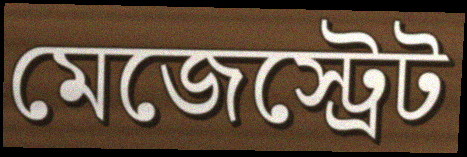
মেজেস্ট্রেট